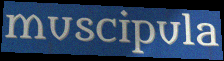
muscipula